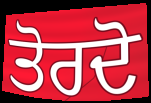
ਤੋਰਦੋ